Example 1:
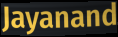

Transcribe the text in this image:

Jayanand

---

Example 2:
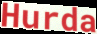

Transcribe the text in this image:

Hurda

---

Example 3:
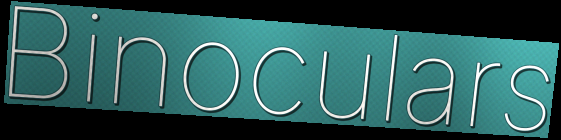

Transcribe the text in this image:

Binoculars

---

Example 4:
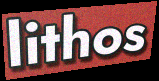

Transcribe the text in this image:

lithos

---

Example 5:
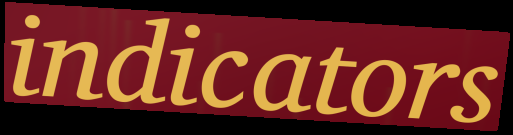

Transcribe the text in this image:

indicators